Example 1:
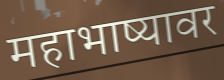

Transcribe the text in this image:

महाभाष्यावर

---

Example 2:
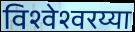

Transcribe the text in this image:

विश्वेश्वरय्या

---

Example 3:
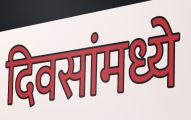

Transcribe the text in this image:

दिवसांमध्ये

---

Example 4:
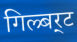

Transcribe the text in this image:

गिल्बर्ट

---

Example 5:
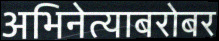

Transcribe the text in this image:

अभिनेत्याबरोबर